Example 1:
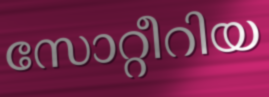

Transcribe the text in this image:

സോറ്റീറിയ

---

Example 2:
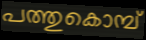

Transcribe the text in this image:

പത്തുകൊമ്പ്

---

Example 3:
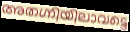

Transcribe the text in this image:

അതഗ്നിയിലാവട്ടെ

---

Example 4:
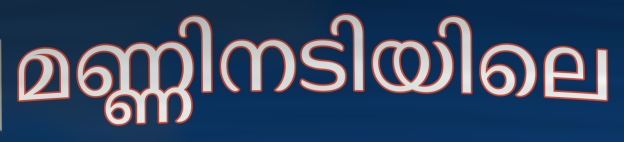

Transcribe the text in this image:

മണ്ണിനടിയിലെ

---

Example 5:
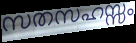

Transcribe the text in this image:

സതസഹസ്സം